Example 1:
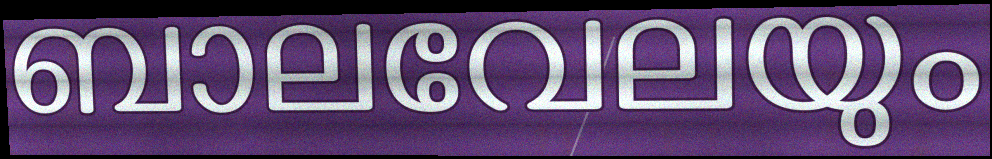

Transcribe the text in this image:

ബാലവേലയും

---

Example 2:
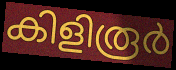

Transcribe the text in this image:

കിളിരൂർ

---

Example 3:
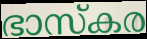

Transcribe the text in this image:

ഭാസ്കര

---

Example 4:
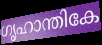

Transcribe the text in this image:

ഗൃഹാന്തികേ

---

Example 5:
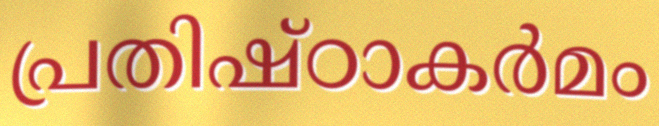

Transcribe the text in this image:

പ്രതിഷ്ഠാകർമം